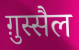
ग़ुस्सैल